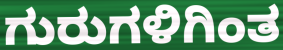
ಗುರುಗಳಿಗಿಂತ